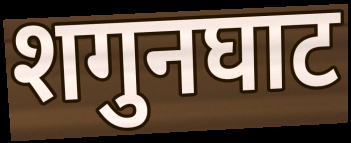
शगुनघाट